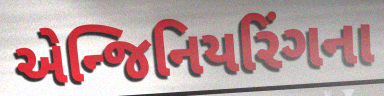
એન્જિનિયરિંગના